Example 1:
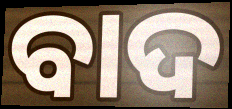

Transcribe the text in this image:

ବାଦ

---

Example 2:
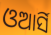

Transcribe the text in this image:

ଓଆର୍ସି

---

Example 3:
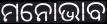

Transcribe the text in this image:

ମନୋଭାବ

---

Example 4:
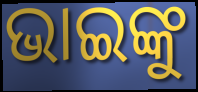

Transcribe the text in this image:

ଭାଇଙ୍କୁ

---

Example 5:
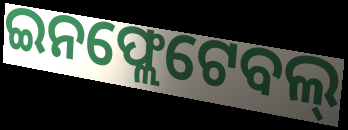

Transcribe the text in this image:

ଇନଫ୍ଲେଟେବଲ୍